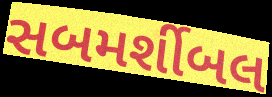
સબમર્શીબલ